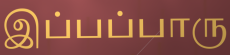
இப்பப்பாரு